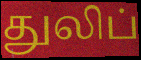
துலிப்